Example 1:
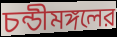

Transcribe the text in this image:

চন্ডীমঙ্গলের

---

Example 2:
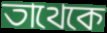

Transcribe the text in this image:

তাথেকে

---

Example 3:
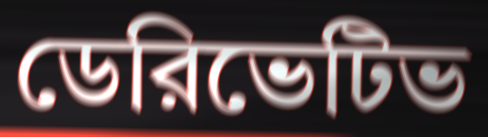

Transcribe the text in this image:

ডেরিভেটিভ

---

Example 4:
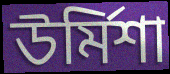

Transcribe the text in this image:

উর্মিশা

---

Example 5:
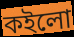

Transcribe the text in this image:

কইলো